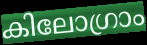
കിലോഗ്രാം